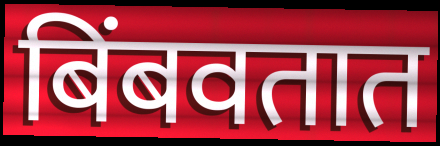
बिंबवतात